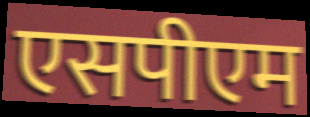
एसपीएम